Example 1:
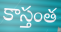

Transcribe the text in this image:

కాస్తంత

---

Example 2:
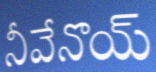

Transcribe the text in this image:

నీవేనొయ్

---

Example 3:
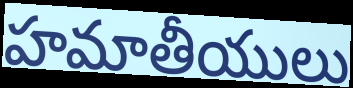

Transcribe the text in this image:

హమాతీయులు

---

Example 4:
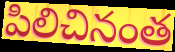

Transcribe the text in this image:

పిలిచినంత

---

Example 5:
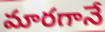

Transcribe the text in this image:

మారగానే